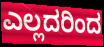
ಎಲ್ಲದರಿಂದ